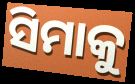
ସିମାକୁ